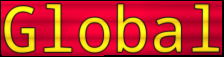
Global